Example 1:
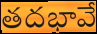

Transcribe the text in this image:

తదభావే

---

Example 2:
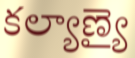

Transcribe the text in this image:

కల్యాణ్యై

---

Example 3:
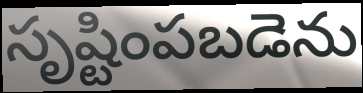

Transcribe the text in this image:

సృష్టింపబడెను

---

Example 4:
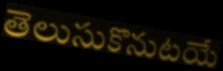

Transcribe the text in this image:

తెలుసుకొనుటయే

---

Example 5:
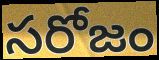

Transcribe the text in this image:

సరోజం